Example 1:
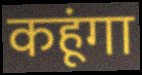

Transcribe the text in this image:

कहूंगा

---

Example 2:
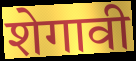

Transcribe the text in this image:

शेगावी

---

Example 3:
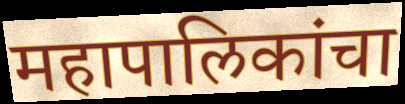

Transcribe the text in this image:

महापालिकांचा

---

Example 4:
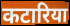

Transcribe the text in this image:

कटारिया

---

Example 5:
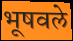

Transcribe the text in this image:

भूषवले